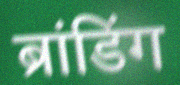
ब्रांडिंग